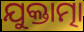
ଯୁକ୍ତାତ୍ମା